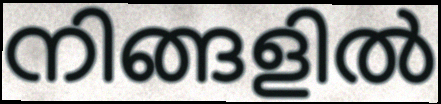
നിങ്ങളിൽ